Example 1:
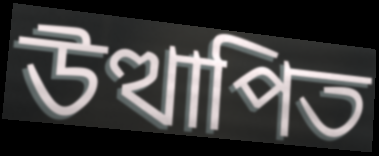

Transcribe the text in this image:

উত্থাপিত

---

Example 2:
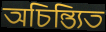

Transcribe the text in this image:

অচিন্ত্যিত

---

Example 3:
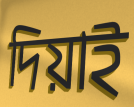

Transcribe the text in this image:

দিয়াই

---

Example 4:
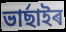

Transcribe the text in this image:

ভাৰ্ছাইৰ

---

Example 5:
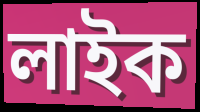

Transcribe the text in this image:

লাইক